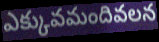
ఎక్కువమందివలన